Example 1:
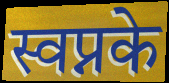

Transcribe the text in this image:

स्वप्नके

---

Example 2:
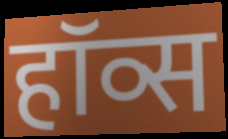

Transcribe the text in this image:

हॉव्स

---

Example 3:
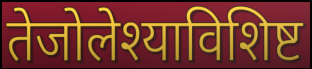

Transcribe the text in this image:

तेजोलेश्याविशिष्ट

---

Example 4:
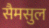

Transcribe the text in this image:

सैमसुल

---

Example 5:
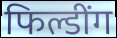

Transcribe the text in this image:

फिल्डींग